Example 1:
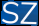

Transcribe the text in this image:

SZ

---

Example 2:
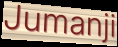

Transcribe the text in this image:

Jumanji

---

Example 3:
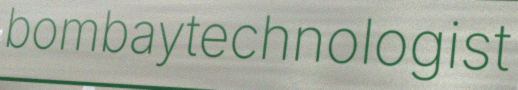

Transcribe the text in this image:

bombaytechnologist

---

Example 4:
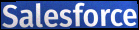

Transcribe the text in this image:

Salesforce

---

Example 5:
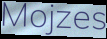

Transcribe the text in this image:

Mojzes